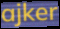
ajker